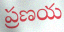
ప్రణయ